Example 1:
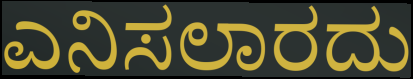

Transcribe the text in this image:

ಎನಿಸಲಾರದು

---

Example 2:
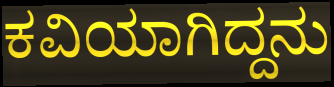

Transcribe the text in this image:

ಕವಿಯಾಗಿದ್ದನು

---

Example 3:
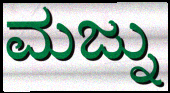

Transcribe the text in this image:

ಮಜ್ನು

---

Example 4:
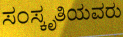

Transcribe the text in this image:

ಸಂಸ್ಕೃತಿಯವರು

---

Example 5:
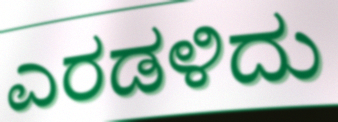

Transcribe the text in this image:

ಎರಡಳಿದು